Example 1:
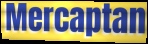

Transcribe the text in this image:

Mercaptan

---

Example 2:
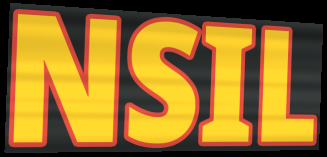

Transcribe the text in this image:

NSIL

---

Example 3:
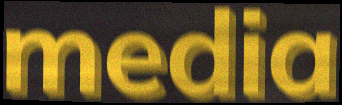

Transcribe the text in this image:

media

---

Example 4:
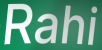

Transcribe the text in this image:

Rahi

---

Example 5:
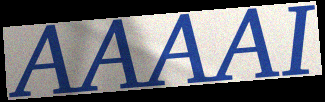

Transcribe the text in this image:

AAAAI